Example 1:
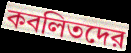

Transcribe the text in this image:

কবলিতদের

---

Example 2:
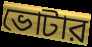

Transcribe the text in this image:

ভোটার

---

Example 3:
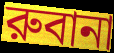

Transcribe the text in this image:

রুবানা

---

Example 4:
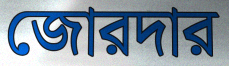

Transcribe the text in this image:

জোরদার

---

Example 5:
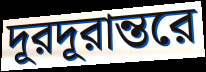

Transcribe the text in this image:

দূরদূরান্তরে